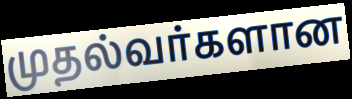
முதல்வர்களான